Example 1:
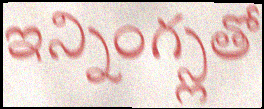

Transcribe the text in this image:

ఇన్నింగ్స్లతో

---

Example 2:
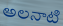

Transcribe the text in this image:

అలనాటి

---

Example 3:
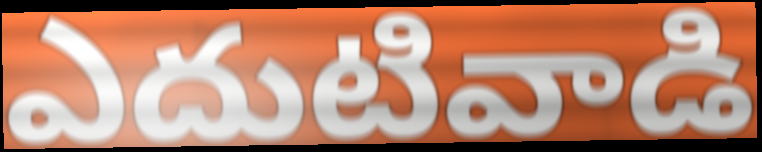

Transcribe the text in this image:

ఎదుటివాడి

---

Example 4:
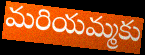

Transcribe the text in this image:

మరియమ్మకు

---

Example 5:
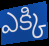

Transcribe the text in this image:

ఎక్కి